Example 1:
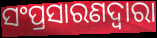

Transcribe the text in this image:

ସଂପ୍ରସାରଣଦ୍ଵାରା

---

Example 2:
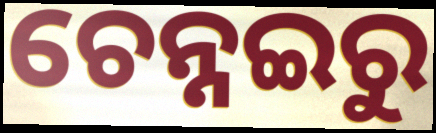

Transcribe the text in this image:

ଚେନ୍ନଇରୁ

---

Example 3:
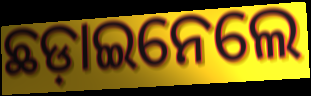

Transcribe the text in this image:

ଛଡ଼ାଇନେଲେ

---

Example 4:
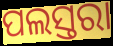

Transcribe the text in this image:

ପଲସ୍ତରା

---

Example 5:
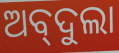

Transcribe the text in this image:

ଅବ୍‌ଦୁଲା